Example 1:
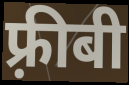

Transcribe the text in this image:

फ़्रीबी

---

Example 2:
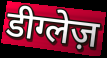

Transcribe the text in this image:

डीग्लेज़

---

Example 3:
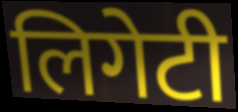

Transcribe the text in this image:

लिगेटी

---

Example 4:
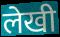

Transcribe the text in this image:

लेखी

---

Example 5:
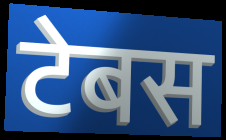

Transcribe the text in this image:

टेबस